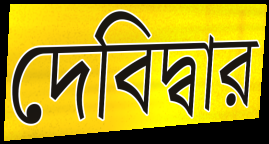
দেবিদ্বার